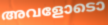
അവളോടൊ